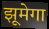
झूमेगा